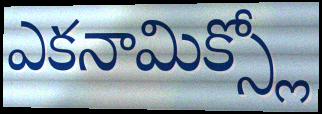
ఎకనామిక్స్లో